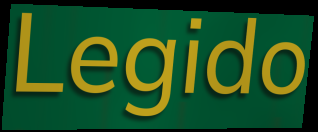
Legido